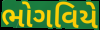
ભોગવિયે